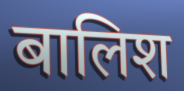
बालिश